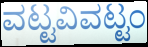
ವಟ್ಟವಿವಟ್ಟಂ